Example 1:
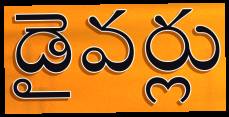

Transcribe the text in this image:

డైవర్లు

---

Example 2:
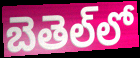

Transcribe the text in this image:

బెతెల్‌లో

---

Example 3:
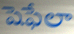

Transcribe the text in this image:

షెఫేలా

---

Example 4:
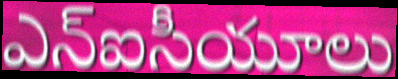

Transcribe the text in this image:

ఎన్ఐసీయూలు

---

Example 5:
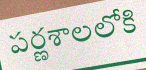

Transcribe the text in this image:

పర్ణశాలలోకి